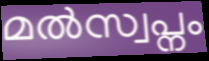
മൽസ്വപ്നം